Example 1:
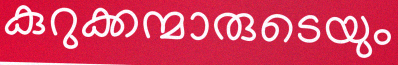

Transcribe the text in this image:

കുറുക്കന്മാരുടെയും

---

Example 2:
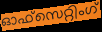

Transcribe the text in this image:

ഓഫ്സെറ്റിംഗ്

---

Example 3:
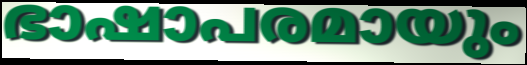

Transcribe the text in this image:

ഭാഷാപരമായും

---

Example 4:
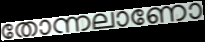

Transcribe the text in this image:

തോന്നലാണോ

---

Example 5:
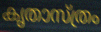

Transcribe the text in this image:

കൃതാസ്ത്രം